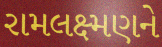
રામલક્ષ્મણને